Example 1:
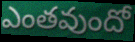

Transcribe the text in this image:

ఎంతవుందో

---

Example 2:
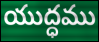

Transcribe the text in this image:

యుద్ధము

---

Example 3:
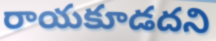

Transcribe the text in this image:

రాయకూడదని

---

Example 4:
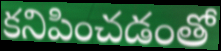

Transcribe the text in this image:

కనిపించడంతో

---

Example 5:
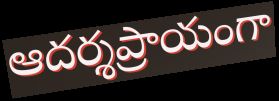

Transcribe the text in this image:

ఆదర్శప్రాయంగా